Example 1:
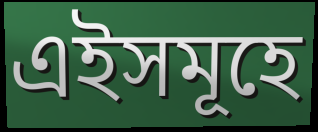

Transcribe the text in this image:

এইসমূহে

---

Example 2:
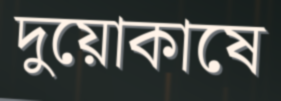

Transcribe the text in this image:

দুয়োকাষে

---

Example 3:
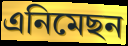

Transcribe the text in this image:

এনিমেছন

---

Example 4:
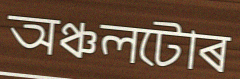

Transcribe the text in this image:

অঞ্চলটোৰ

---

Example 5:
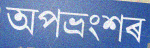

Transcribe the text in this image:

অপভ্ৰংশৰ